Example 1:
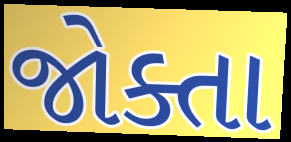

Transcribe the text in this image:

જોક્તા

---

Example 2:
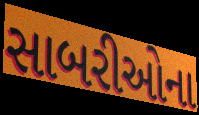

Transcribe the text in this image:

સાબરીઓના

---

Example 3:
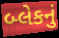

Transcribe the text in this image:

બ્લેકનું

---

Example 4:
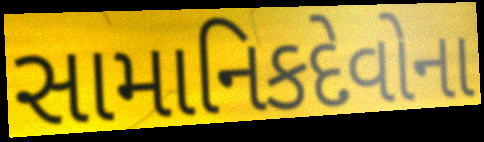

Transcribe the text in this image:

સામાનિકદેવોના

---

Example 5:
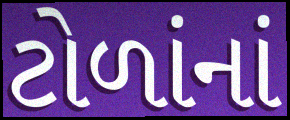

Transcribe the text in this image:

ટોળાંનાં